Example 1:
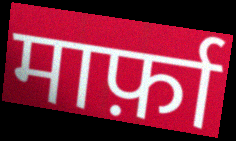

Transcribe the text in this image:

मार्फ़ा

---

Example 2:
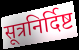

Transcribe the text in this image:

सूत्रनिर्दिष्ट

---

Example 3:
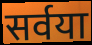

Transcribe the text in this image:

सर्वया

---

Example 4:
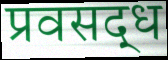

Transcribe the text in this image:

प्रवसद्ध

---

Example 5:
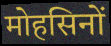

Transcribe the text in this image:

मोहसिनों